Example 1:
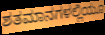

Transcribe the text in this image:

ಶತಮಾನಗಳಲ್ಲಿಯೂ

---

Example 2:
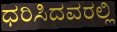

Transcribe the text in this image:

ಧರಿಸಿದವರಲ್ಲಿ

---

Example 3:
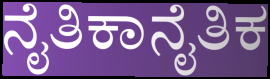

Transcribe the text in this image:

ನೈತಿಕಾನೈತಿಕ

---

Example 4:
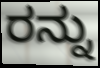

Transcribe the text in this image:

ರನ್ನು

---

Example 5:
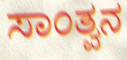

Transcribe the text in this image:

ಸಾಂತ್ವನ